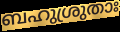
ബഹുശ്രുതാഃ